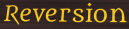
Reversion